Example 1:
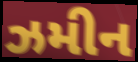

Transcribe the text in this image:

ઝમીન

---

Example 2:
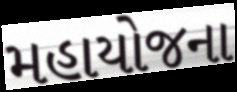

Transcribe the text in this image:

મહાયોજના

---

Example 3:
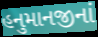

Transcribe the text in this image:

હનુમાનજીનાં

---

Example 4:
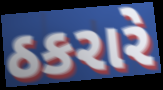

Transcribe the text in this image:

ઠકરારે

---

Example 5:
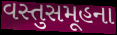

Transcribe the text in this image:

વસ્તુસમૂહના